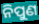
ନିପୁଣ